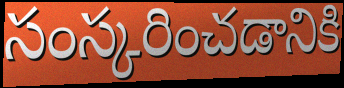
సంస్కరించడానికి